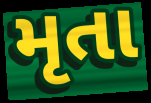
મૃતા